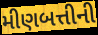
મીણબત્તીની